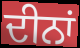
ਦੀਨਾਂ